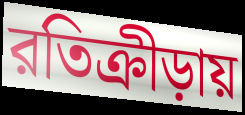
রতিক্রীড়ায়